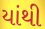
યાંથી